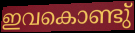
ഇവകൊണ്ടു്